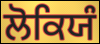
ਲੋਕਿਯੰ